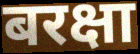
बरक्षा